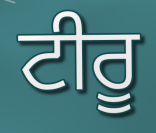
ਟੀਰੂ